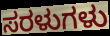
ಸರಳುಗಳು